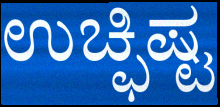
ಉಚ್ಫಿಷ್ಟ